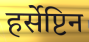
हर्सेप्टिन